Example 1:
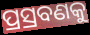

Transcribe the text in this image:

ପ୍ରସ୍ରବଣକୁ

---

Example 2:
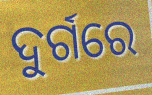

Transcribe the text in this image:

ଦୁର୍ଗରେ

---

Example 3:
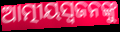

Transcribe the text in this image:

ଆତ୍ମୀୟସ୍ୱଜନଙ୍କୁ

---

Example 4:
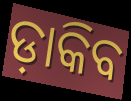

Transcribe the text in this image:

ଡ଼ାକିବ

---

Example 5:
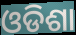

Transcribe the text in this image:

ଓଡିଶା